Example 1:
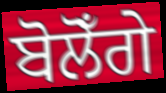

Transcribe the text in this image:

ਬੋਲੋਁਗੇ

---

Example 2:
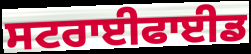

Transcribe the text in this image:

ਸਟਰਾਈਫਾਈਡ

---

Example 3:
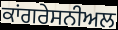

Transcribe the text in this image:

ਕਾਂਗਰੇਸਨੀਅਲ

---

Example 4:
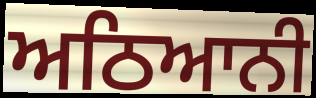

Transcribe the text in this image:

ਅਠਿਆਨੀ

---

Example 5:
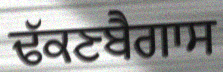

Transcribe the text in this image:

ਢੱਕਣਬੈਗਾਸ